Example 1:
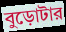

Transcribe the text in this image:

বুড়োটার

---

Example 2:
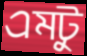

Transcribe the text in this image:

এমটু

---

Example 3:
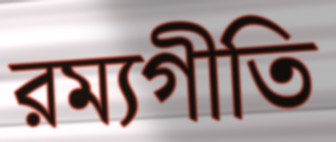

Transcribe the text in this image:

রম্যগীতি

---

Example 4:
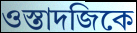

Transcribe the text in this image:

ওস্তাদজিকে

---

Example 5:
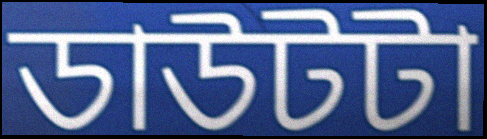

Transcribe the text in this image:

ডাউটটা